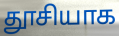
தூசியாக